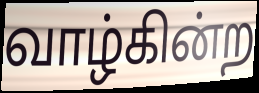
வாழ்கின்ற